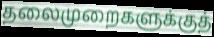
தலைமுறைகளுக்குத்